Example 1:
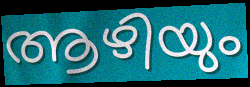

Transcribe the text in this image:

ആഴിയും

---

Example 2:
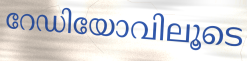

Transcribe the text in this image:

റേഡിയോവിലൂടെ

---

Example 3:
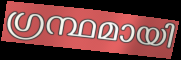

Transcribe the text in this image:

ഗ്രന്ഥമായി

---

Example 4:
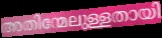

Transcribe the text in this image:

അതിന്മേലുള്ളതായി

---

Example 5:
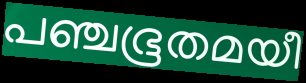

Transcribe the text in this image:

പഞ്ചഭൂതമയീ